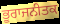
ਭੂਰਾਜਨੀਤਕ